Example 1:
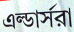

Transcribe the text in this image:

এল্ডার্সরা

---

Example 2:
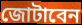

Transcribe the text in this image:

জোটাবেন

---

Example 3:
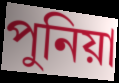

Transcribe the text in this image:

পুনিয়া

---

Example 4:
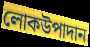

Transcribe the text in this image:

লোকউপাদান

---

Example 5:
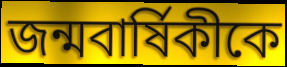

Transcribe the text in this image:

জন্মবার্ষিকীকে